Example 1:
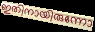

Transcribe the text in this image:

ഇതിനായിരുന്നോ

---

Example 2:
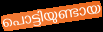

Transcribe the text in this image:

പൊട്ടിയുണ്ടായ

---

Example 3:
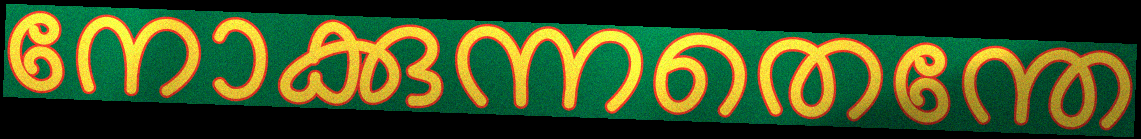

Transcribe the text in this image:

നോക്കുന്നതെന്തേ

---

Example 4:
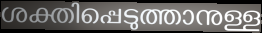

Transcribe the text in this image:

ശക്തിപ്പെടുത്താനുള്ള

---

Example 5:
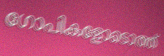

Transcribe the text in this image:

ഗോപികളോടൊത്ത്